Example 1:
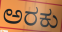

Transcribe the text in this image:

ಅರಕು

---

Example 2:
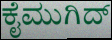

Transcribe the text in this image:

ಕೈಮುಗಿದ್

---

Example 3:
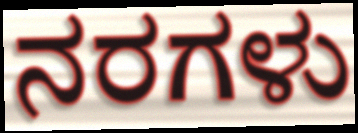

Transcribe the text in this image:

ನರಗಳು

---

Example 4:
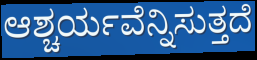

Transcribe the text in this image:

ಆಶ್ಚರ್ಯವೆನ್ನಿಸುತ್ತದೆ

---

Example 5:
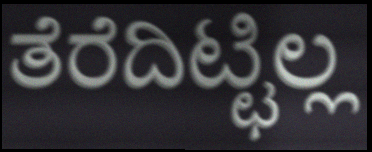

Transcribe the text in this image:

ತೆರೆದಿಟ್ಟಿಲ್ಲ